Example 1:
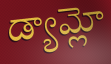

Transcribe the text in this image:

డ్యామ్లో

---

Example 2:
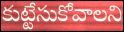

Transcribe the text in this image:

కుట్టేసుకోవాలని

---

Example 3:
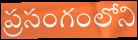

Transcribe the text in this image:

ప్రసంగంలోని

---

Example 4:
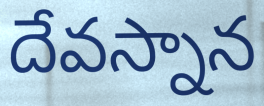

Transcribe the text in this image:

దేవస్నాన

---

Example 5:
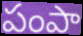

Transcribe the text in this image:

పంపా